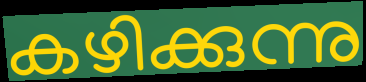
കഴിക്കുന്നു